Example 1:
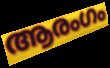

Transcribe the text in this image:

ആരംഗം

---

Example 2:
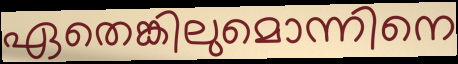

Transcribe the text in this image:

ഏതെങ്കിലുമൊന്നിനെ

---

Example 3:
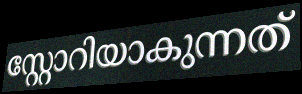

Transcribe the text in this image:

സ്റ്റോറിയാകുന്നത്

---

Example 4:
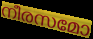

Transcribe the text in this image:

നീരസമോ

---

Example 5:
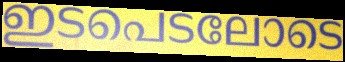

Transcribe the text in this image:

ഇടപെടലോടെ